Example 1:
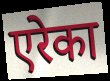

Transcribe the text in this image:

एरेका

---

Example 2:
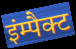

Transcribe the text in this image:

इंम्पैक्ट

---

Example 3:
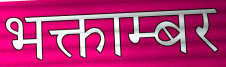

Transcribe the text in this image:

भक्ताम्बर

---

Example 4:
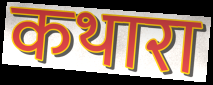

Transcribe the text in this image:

कथारा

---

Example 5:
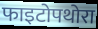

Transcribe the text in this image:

फाइटोपथोरा